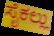
ಸೈಕಲ್ಲು